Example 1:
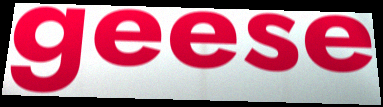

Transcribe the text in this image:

geese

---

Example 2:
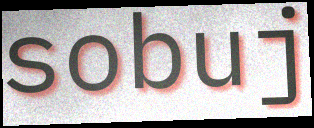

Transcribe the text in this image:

sobuj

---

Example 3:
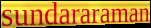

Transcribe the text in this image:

sundararaman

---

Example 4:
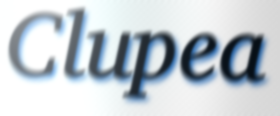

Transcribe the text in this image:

Clupea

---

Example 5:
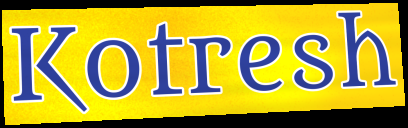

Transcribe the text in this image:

Kotresh